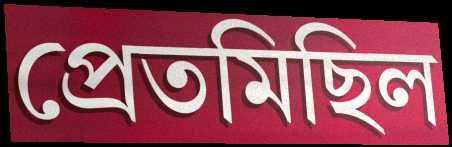
প্রেতমিছিল